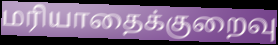
மரியாதைக்குறைவு